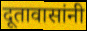
दूतावासांनी